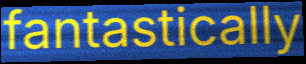
fantastically